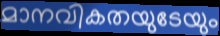
മാനവികതയുടേയും